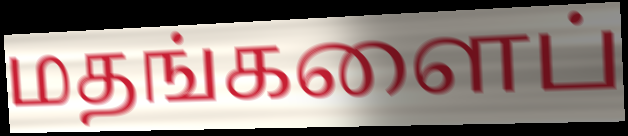
மதங்களைப்